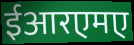
ईआरएमए